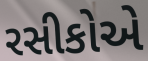
રસીકોએ